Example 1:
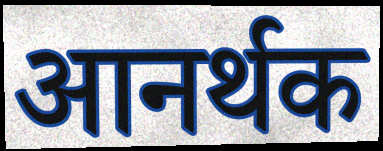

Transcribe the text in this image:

आनर्थक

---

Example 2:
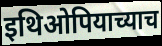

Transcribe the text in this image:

इथिओपियाच्याच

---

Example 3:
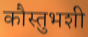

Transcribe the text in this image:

कौस्तुभशी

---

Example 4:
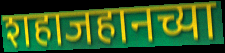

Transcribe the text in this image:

शहाजहानच्या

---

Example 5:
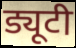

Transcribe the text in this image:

ड्यूटी